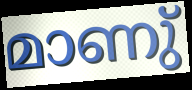
മാണു്